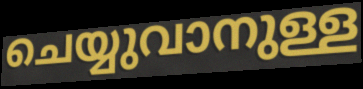
ചെയ്യുവാനുള്ള